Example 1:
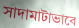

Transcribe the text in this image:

সাদামাটাভাবে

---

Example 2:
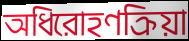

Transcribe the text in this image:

অধিরোহণক্রিয়া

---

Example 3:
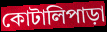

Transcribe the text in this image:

কোটালিপাড়া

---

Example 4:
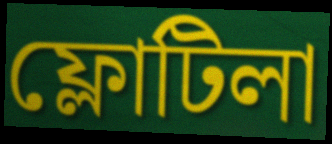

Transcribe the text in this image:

ফ্লোটিলা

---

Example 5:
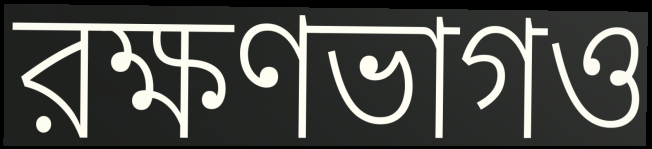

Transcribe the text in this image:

রক্ষণভাগও